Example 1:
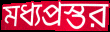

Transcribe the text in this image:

মধ্যপ্রস্তর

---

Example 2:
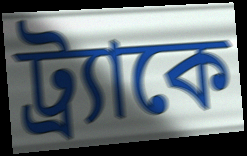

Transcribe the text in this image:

ট্র্যাকে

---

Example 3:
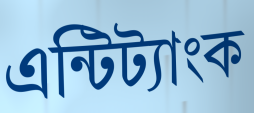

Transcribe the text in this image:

এন্টিট্যাংক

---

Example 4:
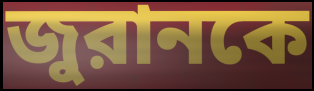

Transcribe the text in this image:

জুরানকে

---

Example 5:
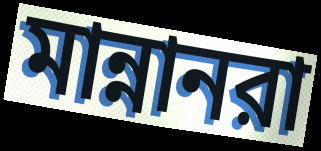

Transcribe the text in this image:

মান্নানরা